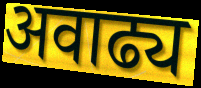
अवाढ्य